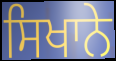
ਸਿਖਾਨੇ